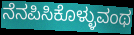
ನೆನಪಿಸಿಕೊಳ್ಳುವಂಥ